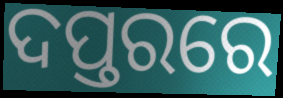
ଦପ୍ତରରେ